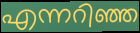
എന്നറിഞ്ഞ